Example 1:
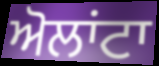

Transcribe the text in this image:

ਅੋਲਾਂਟਾ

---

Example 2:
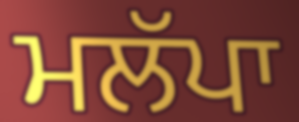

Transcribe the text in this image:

ਮਲੱਪਾ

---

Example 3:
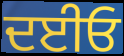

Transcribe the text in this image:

ਦਈਓ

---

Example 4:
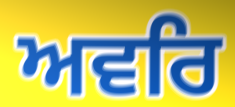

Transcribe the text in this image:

ਅਵਰਿ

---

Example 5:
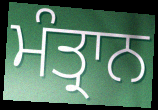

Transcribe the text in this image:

ਮੰਤ੍ਰਾਨ